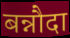
बन्नौदा